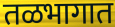
तळभागात